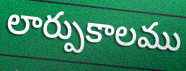
లార్పుకాలము